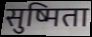
सुष्मिता